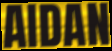
AIDAN